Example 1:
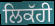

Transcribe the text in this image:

ਲਿਕੱਹੀ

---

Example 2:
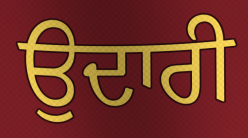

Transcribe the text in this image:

ਉਦਾਰੀ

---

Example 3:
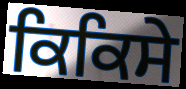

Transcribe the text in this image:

ਕਿਕਿਸੇ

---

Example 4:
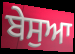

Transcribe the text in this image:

ਬੇਸੁਆ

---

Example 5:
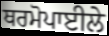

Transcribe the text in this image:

ਥਰਮੋਪਾਈਲੇ